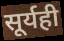
सूर्यही